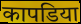
कापडिया